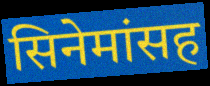
सिनेमांसह